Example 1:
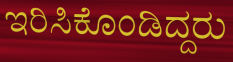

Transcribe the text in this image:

ಇರಿಸಿಕೊಂಡಿದ್ದರು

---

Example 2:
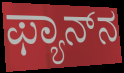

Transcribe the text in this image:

ಫ್ಯಾನ್‌ನ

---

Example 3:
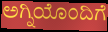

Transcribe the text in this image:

ಅಗ್ನಿಯೊಂದಿಗೆ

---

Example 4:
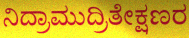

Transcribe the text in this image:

ನಿದ್ರಾಮುದ್ರಿತೇಕ್ಷಣರ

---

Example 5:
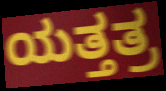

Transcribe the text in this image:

ಯತ್ತತ್ರ